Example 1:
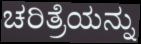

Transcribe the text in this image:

ಚರಿತ್ರೆಯನ್ನು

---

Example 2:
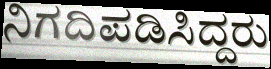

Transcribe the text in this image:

ನಿಗದಿಪಡಿಸಿದ್ದರು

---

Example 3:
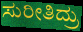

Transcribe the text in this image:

ಸುರೀತಿದ್ರು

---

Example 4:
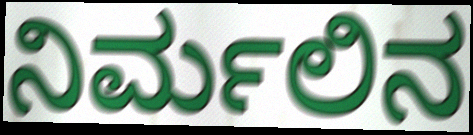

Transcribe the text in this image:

ನಿರ್ಮಲಿನ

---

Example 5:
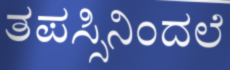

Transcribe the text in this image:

ತಪಸ್ಸಿನಿಂದಲೆ